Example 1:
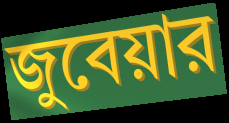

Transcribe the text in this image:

জুবেয়ার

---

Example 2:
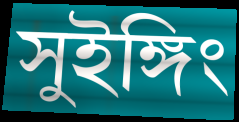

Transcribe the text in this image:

সুইঙ্গিং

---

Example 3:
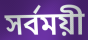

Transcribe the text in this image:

সর্বময়ী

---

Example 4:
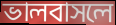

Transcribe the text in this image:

ভালবাসলে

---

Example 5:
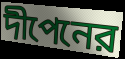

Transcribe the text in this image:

দীপেনের